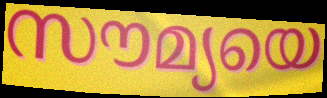
സൗമ്യയെ